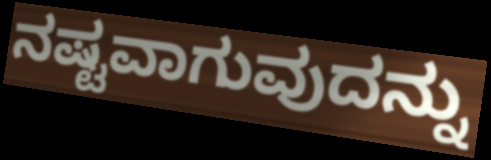
ನಷ್ಟವಾಗುವುದನ್ನು